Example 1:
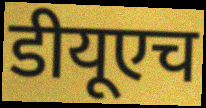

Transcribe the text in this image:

डीयूएच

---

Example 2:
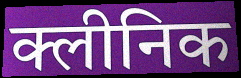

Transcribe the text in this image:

क्‍लीनिक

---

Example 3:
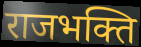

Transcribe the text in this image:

राजभक्ति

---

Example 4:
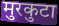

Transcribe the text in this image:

मुरकुटा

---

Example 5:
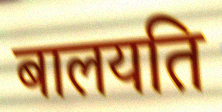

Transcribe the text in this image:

बालयति